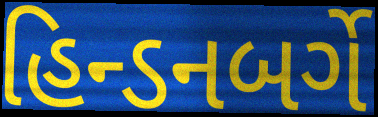
હિન્ડનબર્ગે